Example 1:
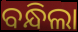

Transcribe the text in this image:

ବନ୍ଧିଲା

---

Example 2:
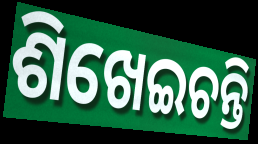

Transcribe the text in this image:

ଶିଖେଇଚନ୍ତି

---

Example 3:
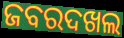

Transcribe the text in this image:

ଜବରଦଖଲ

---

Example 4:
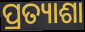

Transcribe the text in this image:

ପ୍ରତ୍ୟାଶା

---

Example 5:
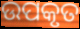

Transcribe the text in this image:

ଉପକୃତ